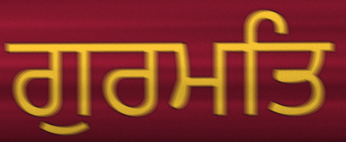
ਗੁਰਮਤਿ